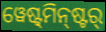
ୱେଷ୍ଟ୍‌ମିନ୍‌ଷ୍ଟର୍